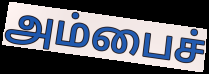
அம்பைச்